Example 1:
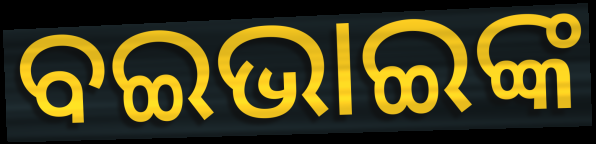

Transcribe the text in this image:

ବଇଭାଇଙ୍କ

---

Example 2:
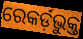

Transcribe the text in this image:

ରେକର୍ଡ଼ଭୁକ୍ତ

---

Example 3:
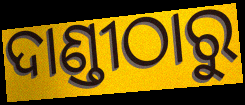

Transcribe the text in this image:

ଦାଣ୍ଡୀଠାରୁ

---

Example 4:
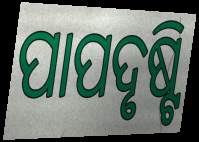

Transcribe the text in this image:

ପାପଦୃଷ୍ଟି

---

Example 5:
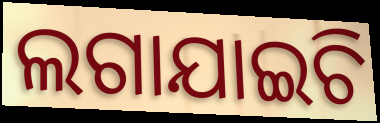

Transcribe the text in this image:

ଲଗାଯାଇଚି